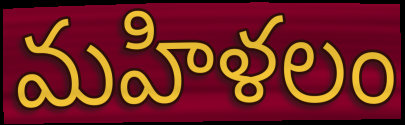
మహిళలం